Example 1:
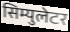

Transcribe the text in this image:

सिम्युलेटर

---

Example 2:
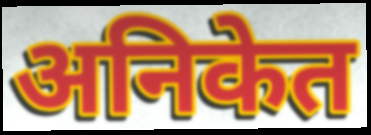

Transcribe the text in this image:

अनिकेत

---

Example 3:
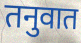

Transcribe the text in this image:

तनुवात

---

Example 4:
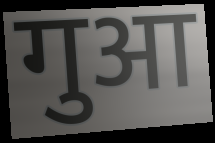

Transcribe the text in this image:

गुआ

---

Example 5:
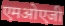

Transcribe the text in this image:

एमओएजी